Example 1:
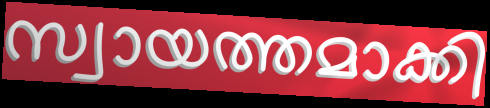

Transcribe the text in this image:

സ്വായത്തമാക്കി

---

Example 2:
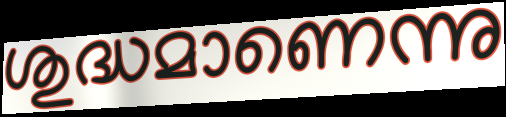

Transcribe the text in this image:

ശുദ്ധമാണെന്നു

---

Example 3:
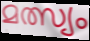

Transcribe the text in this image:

മത്സ്യം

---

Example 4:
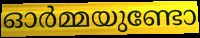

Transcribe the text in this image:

ഓർമ്മയുണ്ടോ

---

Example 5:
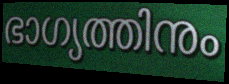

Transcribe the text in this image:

ഭാഗ്യത്തിനും